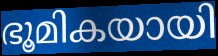
ഭൂമികയായി